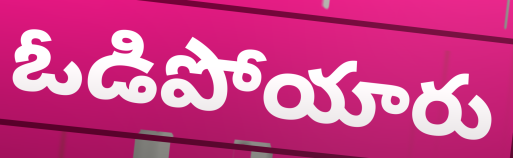
ఓడిపోయారు